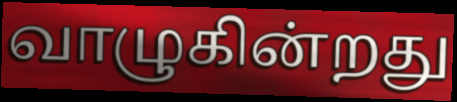
வாழுகின்றது